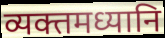
व्यक्तमध्यानि